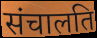
संचालति